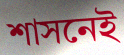
শাসনেই